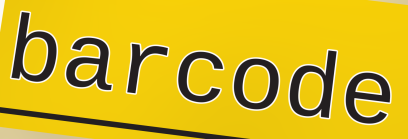
barcode